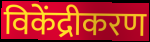
विकेंद्रीकरण